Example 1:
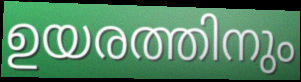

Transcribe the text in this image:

ഉയരത്തിനും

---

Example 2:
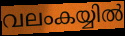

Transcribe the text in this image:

വലംകയ്യിൽ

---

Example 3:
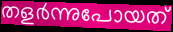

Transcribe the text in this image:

തളർന്നുപോയത്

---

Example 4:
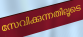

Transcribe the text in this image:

സേവിക്കുന്നതിലൂടെ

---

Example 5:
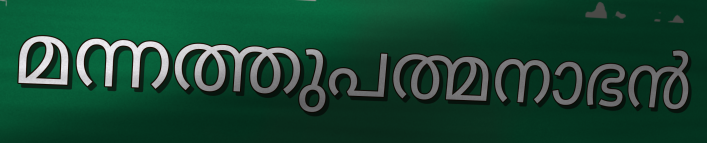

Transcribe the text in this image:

മന്നത്തുപത്മനാഭൻ